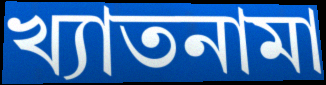
খ্যাতনামা